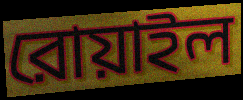
রোয়াইল